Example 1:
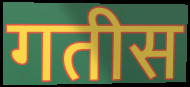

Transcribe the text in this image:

गतीस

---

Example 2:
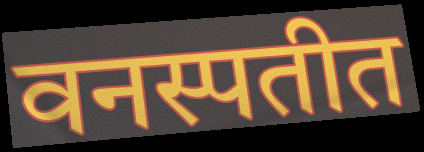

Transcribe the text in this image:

वनस्पतीत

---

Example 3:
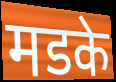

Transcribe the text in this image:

मडके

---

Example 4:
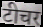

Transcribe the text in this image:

टीचर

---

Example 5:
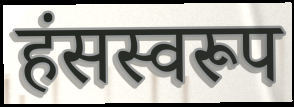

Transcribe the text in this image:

हंसस्वरूप